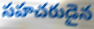
సహచరుడైన